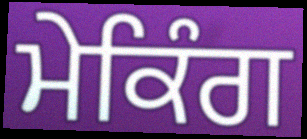
ਮੇਕਿੰਗ